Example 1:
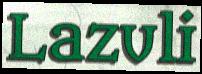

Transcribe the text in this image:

Lazuli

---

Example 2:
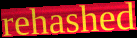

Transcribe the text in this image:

rehashed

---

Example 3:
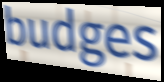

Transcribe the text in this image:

budges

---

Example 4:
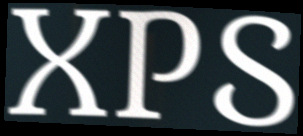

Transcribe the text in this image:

XPS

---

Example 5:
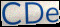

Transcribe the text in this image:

CDe